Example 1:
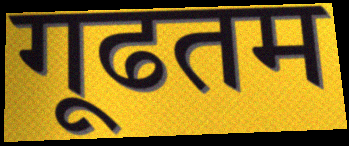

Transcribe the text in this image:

गूढतम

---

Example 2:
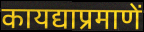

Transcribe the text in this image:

कायद्याप्रमाणें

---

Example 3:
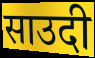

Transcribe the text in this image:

साउदी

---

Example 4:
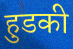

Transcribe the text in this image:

हुडकी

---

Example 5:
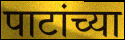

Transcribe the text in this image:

पाटांच्या